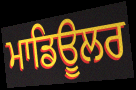
ਮਾਡਿਊਲਰ